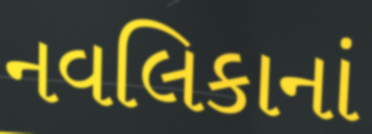
નવલિકાનાં